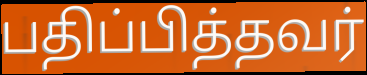
பதிப்பித்தவர்